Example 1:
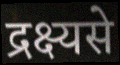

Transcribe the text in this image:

द्रक्ष्यसे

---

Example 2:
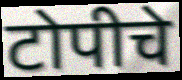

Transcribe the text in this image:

टोपीचे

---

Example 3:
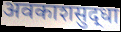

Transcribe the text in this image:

अवकाशसुद्धा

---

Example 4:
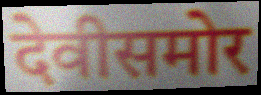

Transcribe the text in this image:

देवीसमोर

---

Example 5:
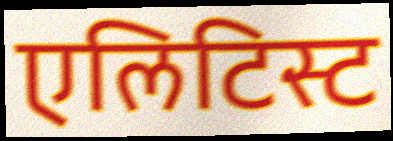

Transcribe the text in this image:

एलिटिस्ट